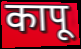
कापू